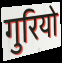
गुरियो